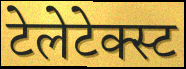
टेलेटेक्स्ट